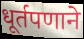
धूर्तपणाने